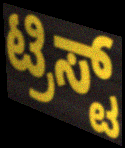
ಟ್ರಿಸ್ಟ್